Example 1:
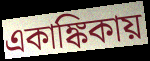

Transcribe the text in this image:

একাঙ্কিকায়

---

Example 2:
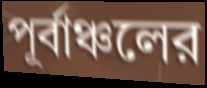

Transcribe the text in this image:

পূর্বাঞ্চলের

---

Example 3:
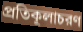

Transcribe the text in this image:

প্রতিকূলাচরণ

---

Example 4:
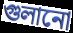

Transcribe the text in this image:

গুলানো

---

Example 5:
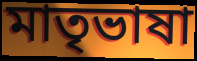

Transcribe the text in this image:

মাতৃভাষা